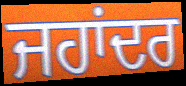
ਜਹਾਂਦਰ